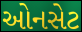
ઓનસેટ